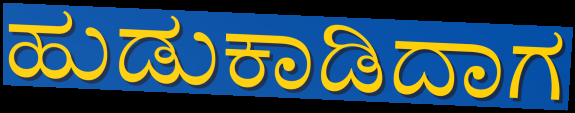
ಹುಡುಕಾಡಿದಾಗ